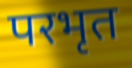
परभृत